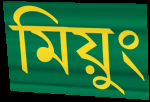
মিয়ুং